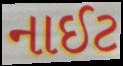
નાઈટ